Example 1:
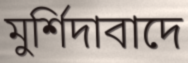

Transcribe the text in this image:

মুর্শিদাবাদে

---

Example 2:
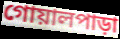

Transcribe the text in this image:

গোয়ালপাড়া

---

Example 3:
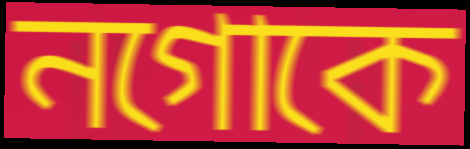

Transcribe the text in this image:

নগোকে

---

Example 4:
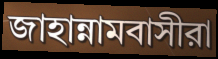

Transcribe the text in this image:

জাহান্নামবাসীরা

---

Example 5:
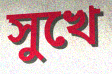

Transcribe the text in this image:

সুখে